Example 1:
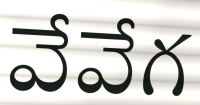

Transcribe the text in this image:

వేవేగ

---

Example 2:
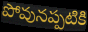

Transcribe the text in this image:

పోవునప్పటికి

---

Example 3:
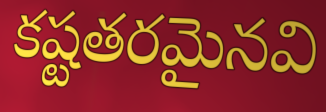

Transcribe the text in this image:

కష్టతరమైనవి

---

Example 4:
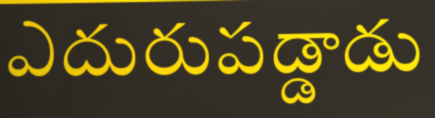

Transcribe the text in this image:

ఎదురుపడ్డాడు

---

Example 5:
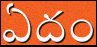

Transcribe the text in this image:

ఏదం